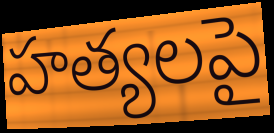
హత్యలపై